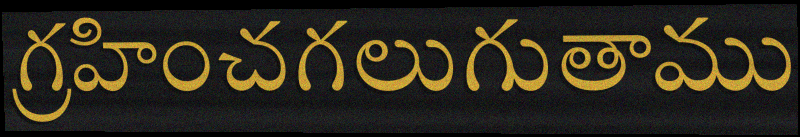
గ్రహించగలుగుతాము